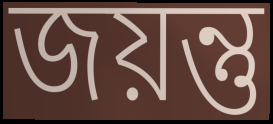
জয়ন্তু